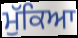
ਮੁੱਕਿਆ